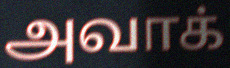
அவாக்